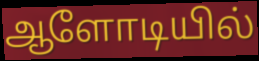
ஆளோடியில்